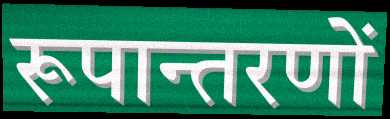
रूपान्तरणों